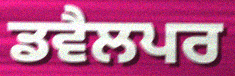
ਡਵੈਲਪਰ